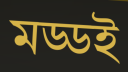
মড্ডই